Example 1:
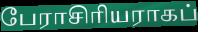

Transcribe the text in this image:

பேராசிரியராகப்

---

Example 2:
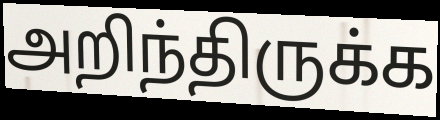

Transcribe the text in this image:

அறிந்திருக்க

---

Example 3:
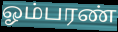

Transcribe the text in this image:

ஓம்பரண்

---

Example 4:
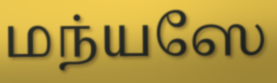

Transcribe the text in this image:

மந்யஸே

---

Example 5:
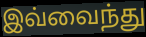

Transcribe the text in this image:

இவ்வைந்து